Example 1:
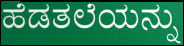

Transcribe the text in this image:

ಹೆಡತಲೆಯನ್ನು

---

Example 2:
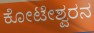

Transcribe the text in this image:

ಕೋಟೇಶ್ವರನ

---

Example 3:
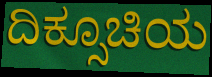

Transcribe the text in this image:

ದಿಕ್ಸೂಚಿಯ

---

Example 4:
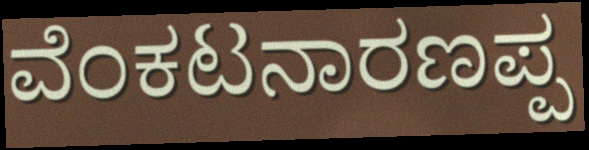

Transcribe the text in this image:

ವೆಂಕಟನಾರಣಪ್ಪ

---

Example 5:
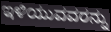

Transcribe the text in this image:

ಇಳಿಯುವವರನ್ನು